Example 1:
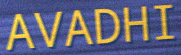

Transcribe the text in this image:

AVADHI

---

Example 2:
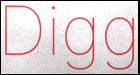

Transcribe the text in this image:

Digg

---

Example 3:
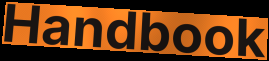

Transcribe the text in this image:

Handbook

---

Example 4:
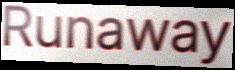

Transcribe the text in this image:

Runaway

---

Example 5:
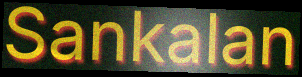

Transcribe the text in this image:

Sankalan